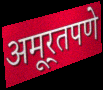
अमूर्तपणे